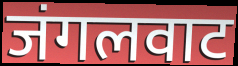
जंगलवाट